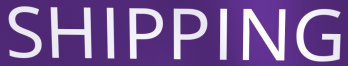
SHIPPING